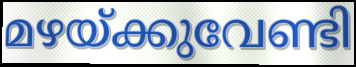
മഴയ്ക്കുവേണ്ടി